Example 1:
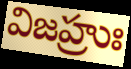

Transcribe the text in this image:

విజహ్రుః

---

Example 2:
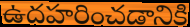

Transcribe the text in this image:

ఉదహరించడానికి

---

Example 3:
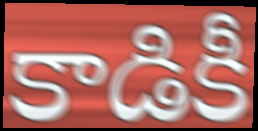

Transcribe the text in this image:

కాడికీ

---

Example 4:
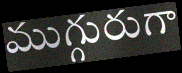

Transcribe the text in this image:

ముగ్గురుగా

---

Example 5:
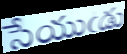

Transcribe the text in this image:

సేయుఁడు